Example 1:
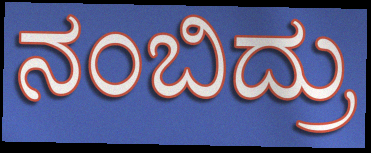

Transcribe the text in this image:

ನಂಬಿದ್ರು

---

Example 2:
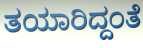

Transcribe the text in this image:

ತಯಾರಿದ್ದಂತೆ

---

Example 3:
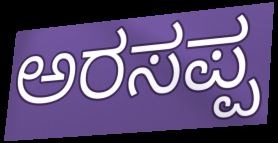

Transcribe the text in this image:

ಅರಸಪ್ಪ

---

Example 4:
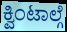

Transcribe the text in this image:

ಕ್ವಿಂಟಾಲ್ಗೆ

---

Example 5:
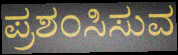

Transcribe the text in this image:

ಪ್ರಶಂಸಿಸುವ